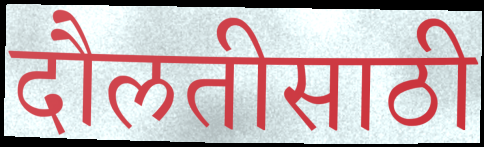
दौलतीसाठी